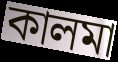
কালমা